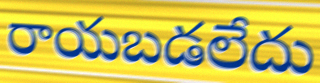
రాయబడలేదు